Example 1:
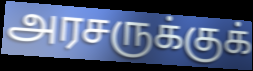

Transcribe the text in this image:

அரசருக்குக்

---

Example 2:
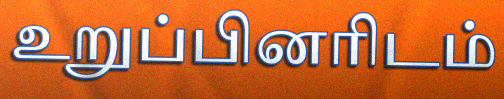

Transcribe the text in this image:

உறுப்பினரிடம்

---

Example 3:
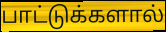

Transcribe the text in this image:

பாட்டுக்களால்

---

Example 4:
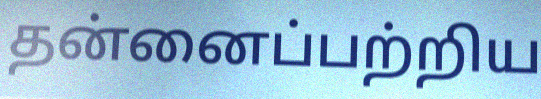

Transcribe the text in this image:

தன்னைப்பற்றிய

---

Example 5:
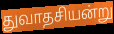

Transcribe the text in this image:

துவாதசியன்று